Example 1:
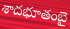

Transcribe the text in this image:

శాదభూతంబై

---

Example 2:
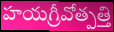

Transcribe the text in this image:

హయగ్రీవోత్పత్తి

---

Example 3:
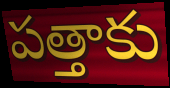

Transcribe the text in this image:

పత్తాకు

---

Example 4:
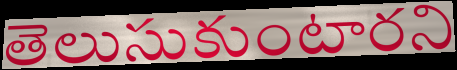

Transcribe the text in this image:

తెలుసుకుంటారని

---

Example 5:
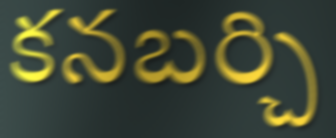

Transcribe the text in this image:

కనబర్చి